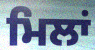
ਮਿਲਾਂ